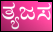
ತ್ಯಜಸ